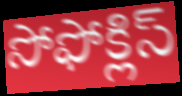
సోఫోక్లిస్